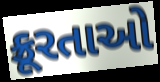
ક્રૂરતાઓ